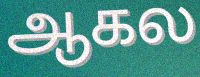
ஆகல